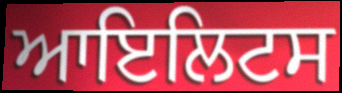
ਆਇਲਿਟਸ